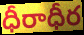
ధీరాధీర